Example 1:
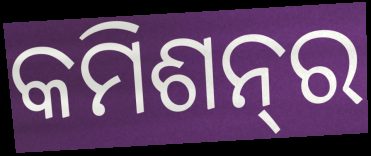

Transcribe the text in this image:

କମିଶନ୍‌ର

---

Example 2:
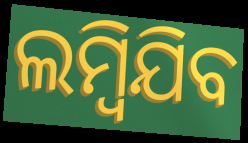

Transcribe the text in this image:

ଲମ୍ୱିଯିବ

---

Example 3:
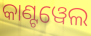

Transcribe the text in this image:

କାଣ୍ଟୱେଲ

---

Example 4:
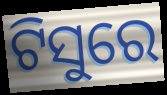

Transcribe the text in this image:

ଟିସୁରେ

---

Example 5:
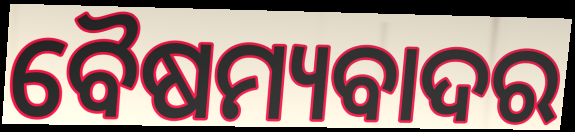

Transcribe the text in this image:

ବୈଷମ୍ୟବାଦର